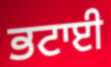
ਭਟਾਈ